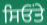
ਸਿਓਂਤੇ